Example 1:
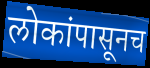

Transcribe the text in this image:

लोकांपासूनच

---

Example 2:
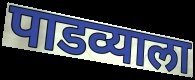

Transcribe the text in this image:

पाडव्याला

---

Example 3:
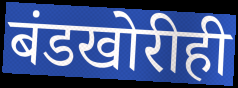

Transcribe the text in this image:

बंडखोरीही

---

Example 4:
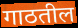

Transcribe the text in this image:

गाठतील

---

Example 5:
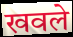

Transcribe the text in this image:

खवले